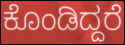
ಕೊಂಡಿದ್ದರೆ